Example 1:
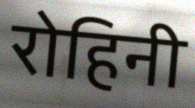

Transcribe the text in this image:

रोहिनी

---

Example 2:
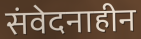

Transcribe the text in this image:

संवेदनाहीन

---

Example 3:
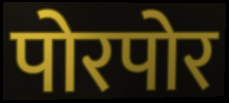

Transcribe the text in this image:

पोरपोर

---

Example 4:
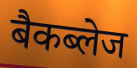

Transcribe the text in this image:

बैकब्लेज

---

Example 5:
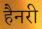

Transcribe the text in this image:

हैनरी